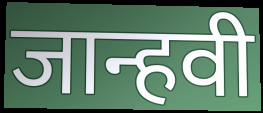
जान्हवी